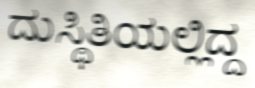
ದುಸ್ಥಿತಿಯಲ್ಲಿದ್ದ